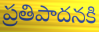
ప్రతిపాదనకి